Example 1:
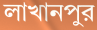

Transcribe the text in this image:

লাখানপুর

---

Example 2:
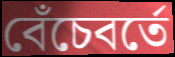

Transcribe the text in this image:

বেঁচেবর্তে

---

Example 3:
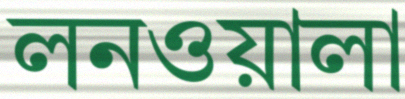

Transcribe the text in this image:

লনওয়ালা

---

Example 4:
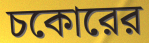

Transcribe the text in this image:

চকোরের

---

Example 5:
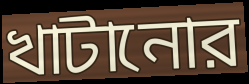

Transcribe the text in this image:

খাটানোর